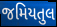
જમિયતુલ